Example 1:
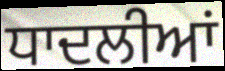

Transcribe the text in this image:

ਧਾਦਲੀਆਂ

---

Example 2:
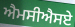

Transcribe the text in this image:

ਐਮਸੀਐਸਏ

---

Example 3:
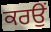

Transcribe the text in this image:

ਕਰਉਂ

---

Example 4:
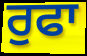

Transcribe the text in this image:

ਰੁਫਾ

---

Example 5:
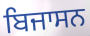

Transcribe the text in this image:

ਬਿਜਾਸਨ